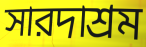
সারদাশ্রম